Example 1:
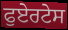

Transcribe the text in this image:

ਫੁਏਰਟੇਸ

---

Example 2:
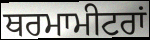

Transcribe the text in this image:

ਥਰਮਾਮੀਟਰਾਂ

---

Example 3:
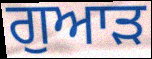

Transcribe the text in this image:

ਗੁਆੜ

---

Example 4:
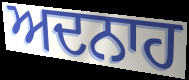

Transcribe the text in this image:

ਅਦਨਾਹ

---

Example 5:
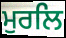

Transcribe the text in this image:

ਮੁਰਲਿ